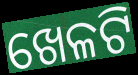
ଖେଳଟି